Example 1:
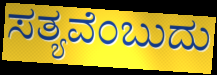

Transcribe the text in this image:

ಸತ್ಯವೆಂಬುದು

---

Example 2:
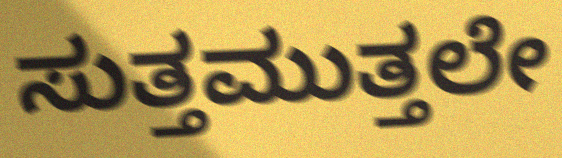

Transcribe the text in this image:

ಸುತ್ತಮುತ್ತಲೇ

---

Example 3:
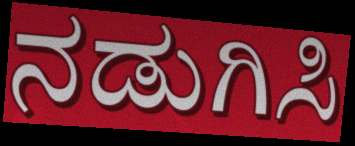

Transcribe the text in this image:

ನಡುಗಿಸಿ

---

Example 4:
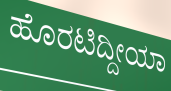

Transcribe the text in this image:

ಹೊರಟಿದ್ದೀಯಾ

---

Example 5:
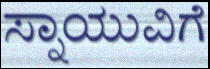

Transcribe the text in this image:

ಸ್ನಾಯುವಿಗೆ